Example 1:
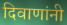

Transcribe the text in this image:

दिवाणांनी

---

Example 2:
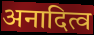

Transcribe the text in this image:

अनादित्व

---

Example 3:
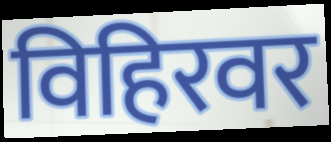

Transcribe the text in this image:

विहिरवर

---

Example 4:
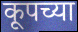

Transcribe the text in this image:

कूपच्या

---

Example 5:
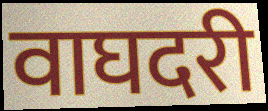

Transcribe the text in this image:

वाघदरी